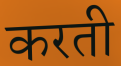
करती